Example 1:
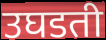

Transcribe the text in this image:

उघडती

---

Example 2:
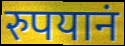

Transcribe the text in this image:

रुपयानं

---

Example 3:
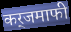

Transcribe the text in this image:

कर्जमाफी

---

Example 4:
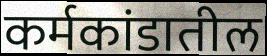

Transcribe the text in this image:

कर्मकांडातील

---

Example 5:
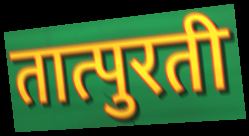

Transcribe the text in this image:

तात्पुरती